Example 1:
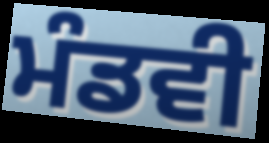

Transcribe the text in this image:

ਮੰਡਵੀ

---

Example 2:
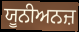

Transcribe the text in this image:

ਯੂਨੀਅਨਜ਼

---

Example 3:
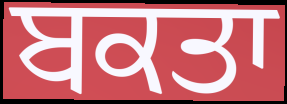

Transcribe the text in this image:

ਬਕਤਾ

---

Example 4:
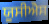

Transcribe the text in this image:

ਯੂਸੀਐਸ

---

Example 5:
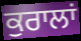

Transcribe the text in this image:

ਕੁਰਾਲਾਂ